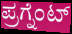
ಪ್ರಗ್ನೆಂಟ್